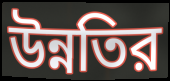
উন্নতির